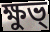
ক্ষুভ্